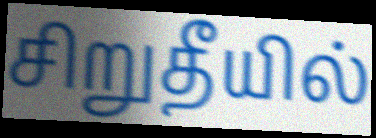
சிறுதீயில்